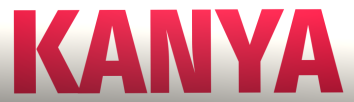
KANYA